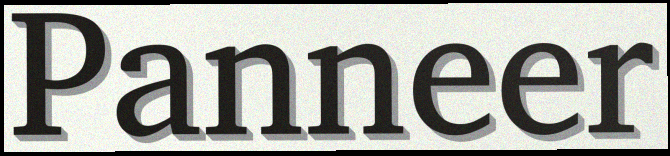
Panneer